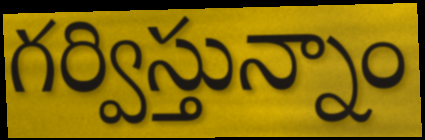
గర్విస్తున్నాం